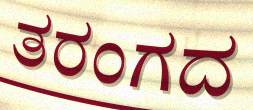
ತರಂಗದ